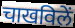
चाखविलें